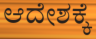
ಆದೇಶಕ್ಕೆ